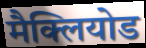
मैक्लियोड